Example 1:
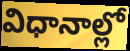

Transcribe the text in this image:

విధానాల్లో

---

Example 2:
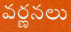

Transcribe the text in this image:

వర్ణనలు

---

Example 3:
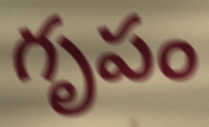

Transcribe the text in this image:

గృపం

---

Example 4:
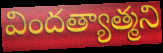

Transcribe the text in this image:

విందత్యాత్మని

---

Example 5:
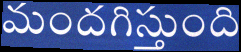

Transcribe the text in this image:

మందగిస్తుంది